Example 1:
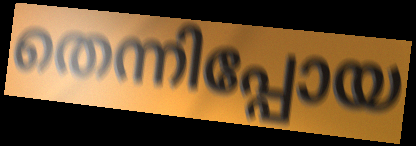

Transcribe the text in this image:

തെന്നിപ്പോയ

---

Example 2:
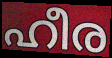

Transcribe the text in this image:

ഹീര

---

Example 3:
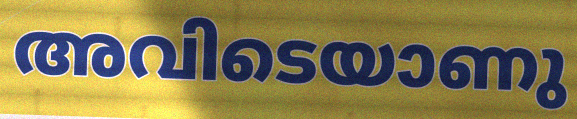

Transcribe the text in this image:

അവിടെയാണു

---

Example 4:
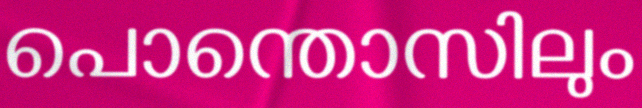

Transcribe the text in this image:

പൊന്തൊസിലും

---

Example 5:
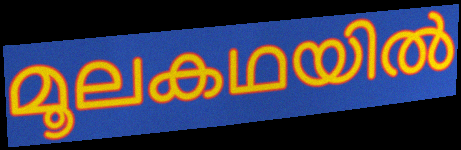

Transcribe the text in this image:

മൂലകഥയിൽ